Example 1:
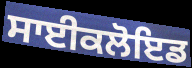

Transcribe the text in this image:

ਸਾਈਕਲੋਇਡ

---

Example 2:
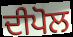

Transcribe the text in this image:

ਦੀਪੋਲ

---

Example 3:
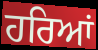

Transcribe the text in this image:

ਹਰਿਆਂ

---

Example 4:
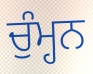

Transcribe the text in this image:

ਚੁੰਮ੍ਹਨ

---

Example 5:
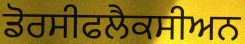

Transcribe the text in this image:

ਡੋਰਸੀਫਲੈਕਸੀਅਨ